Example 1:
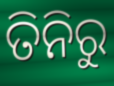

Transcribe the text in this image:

ତିନିରୁ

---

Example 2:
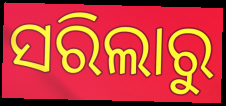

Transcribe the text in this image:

ସରିଲାରୁ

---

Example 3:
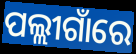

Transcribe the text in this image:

ପଲ୍ଲୀଗାଁରେ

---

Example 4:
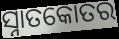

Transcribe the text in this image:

ସ୍ନାତକୋତର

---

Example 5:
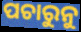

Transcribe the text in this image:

ପଚାରୁନୁ